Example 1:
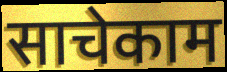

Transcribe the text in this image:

साचेकाम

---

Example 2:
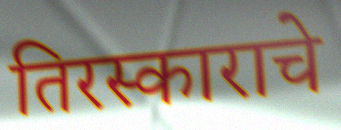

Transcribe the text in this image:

तिरस्काराचे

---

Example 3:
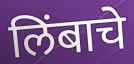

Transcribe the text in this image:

लिंबाचे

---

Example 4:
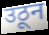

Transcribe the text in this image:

उठून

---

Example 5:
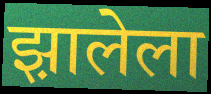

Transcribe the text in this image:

झ़ालेला